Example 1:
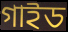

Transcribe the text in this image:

গাইড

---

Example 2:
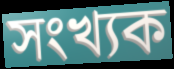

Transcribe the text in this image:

সংখ্যক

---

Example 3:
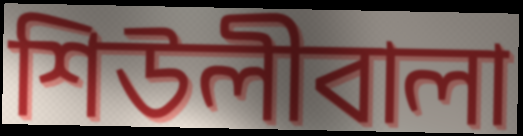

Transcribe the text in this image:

শিউলীবালা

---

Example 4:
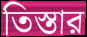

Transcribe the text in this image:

তিস্তার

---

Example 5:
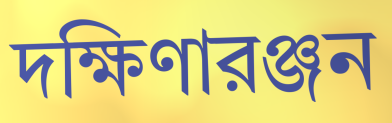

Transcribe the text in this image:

দক্ষিণারঞ্জন